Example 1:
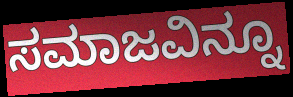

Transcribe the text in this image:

ಸಮಾಜವಿನ್ನೂ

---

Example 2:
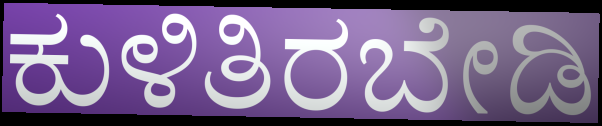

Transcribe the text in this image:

ಕುಳಿತಿರಬೇಡಿ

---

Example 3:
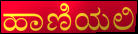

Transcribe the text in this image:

ಹಾಣಿಯಲಿ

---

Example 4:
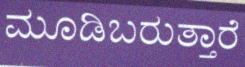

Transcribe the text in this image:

ಮೂಡಿಬರುತ್ತಾರೆ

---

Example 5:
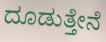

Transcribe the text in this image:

ದೂಡುತ್ತೇನೆ